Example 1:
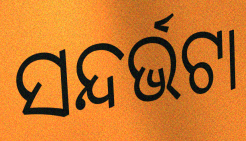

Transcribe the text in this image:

ସନ୍ଦର୍ଭଟା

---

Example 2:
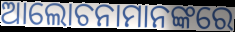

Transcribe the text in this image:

ଆଲୋଚନାମାନଙ୍କରେ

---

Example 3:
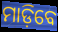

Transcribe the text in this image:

ମାଡ଼ିବେ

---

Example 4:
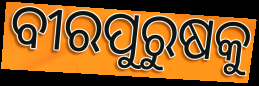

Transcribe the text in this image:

ବୀରପୁରୁଷକୁ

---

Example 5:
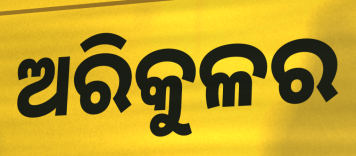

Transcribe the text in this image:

ଅରିକୁଳର